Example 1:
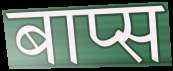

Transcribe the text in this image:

बाप्स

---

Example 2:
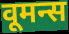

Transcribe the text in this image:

वूमन्स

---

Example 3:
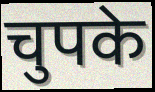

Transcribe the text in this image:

चुपके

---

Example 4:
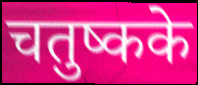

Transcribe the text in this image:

चतुष्कके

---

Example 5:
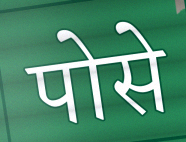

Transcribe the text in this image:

पोसे